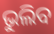
ଭୁଲିବ